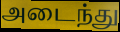
அடைந்து